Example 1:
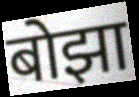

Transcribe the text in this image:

बोझा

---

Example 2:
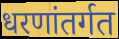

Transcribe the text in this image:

धरणांतर्गत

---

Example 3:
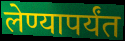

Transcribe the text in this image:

लेण्यापर्यंत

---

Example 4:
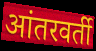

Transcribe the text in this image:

आंतरवर्ती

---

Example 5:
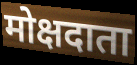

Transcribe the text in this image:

मोक्षदाता